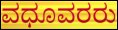
ವಧೂವರರು